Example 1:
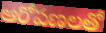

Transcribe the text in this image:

ఆరోపణలతో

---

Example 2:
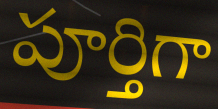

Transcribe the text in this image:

పూర్తిగా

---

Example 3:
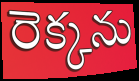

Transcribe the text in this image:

రెక్కను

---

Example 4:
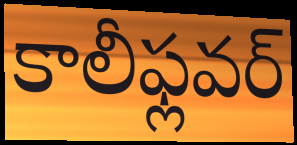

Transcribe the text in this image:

కాలీఫ్లవర్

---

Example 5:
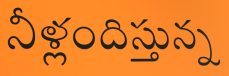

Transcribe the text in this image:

నీళ్లందిస్తున్న